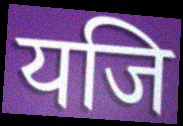
यजि